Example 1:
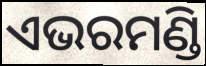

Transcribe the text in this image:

ଏଭରମଣ୍ଡି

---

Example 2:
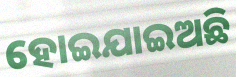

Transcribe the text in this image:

ହୋଇଯାଇଅଛି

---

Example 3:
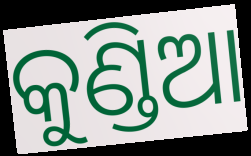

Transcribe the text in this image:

କୁଣ୍ଡିଆ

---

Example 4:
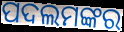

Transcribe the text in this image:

ପଦଲମଙ୍କର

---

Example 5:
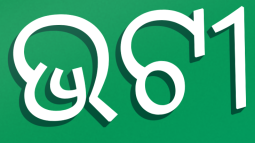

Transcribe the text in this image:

ଭଟୀ